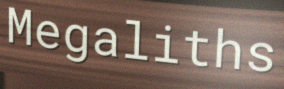
Megaliths